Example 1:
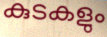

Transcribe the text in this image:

കുടകളും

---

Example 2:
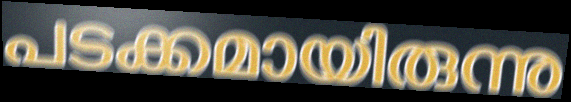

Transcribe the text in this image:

പടക്കമായിരുന്നു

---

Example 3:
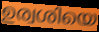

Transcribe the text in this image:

ഉര്വശിയെ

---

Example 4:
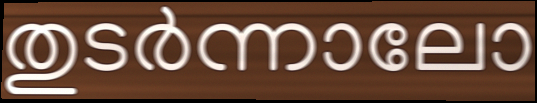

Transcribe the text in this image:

തുടർന്നാലോ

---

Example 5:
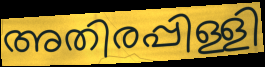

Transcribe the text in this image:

അതിരപ്പിള്ളി